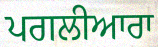
ਪਗਲੀਆਰਾ